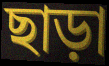
ছাড়া